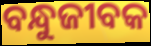
ବନ୍ଧୁଜୀବକ